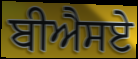
ਬੀਐਸਏ